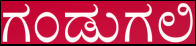
ಗಂಡುಗಲಿ